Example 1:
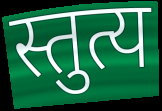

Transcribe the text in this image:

स्तुत्य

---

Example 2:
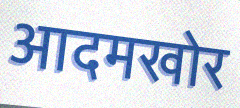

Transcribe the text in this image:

आदमखोर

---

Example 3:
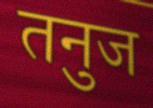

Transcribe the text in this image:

तनुज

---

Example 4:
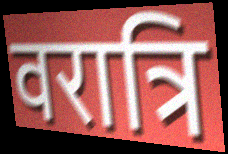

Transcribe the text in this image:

वरात्रि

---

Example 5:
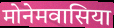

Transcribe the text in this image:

मोनेमवासिया